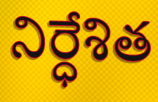
నిర్ధేశిత